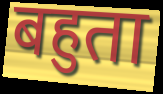
बहुता